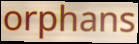
orphans